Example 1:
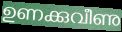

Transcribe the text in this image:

ഉണക്കുവീണു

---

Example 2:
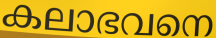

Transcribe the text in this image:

കലാഭവനെ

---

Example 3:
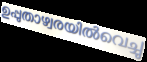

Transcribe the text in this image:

ഉപ്പുതാഴ്വരയിൽവെച്ചു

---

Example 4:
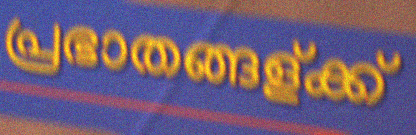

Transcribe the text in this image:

പ്രഭാതങ്ങള്ക്ക്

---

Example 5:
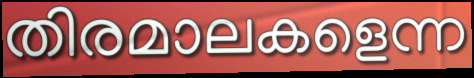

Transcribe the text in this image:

തിരമാലകളെന്ന